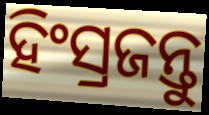
ହିଂସ୍ରଜନ୍ତୁ